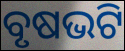
ବୃଷଭଟି